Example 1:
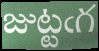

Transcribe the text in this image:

జుట్టఁగ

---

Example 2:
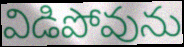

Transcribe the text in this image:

విడిపోవును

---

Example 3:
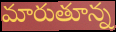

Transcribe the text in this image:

మారుతూన్న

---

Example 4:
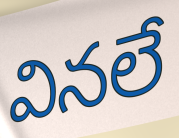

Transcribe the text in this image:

వినలే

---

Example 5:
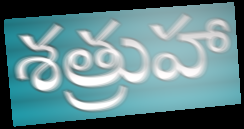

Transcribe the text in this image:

శత్రుహా